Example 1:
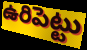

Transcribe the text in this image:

ఉరిపెట్టు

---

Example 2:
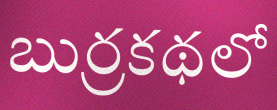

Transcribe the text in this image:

బుర్రకథలో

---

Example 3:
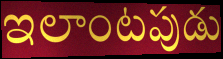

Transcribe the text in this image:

ఇలాంటపుడు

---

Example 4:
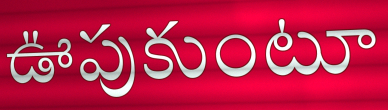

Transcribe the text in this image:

ఊపుకుంటూ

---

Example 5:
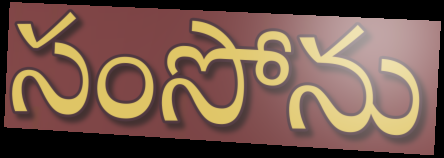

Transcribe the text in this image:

సంసోను